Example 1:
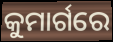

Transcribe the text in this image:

କୁମାର୍ଗରେ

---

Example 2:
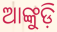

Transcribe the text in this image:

ଆଙ୍କୁଡ଼ି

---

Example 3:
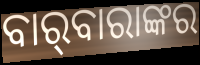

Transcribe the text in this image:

ବାର୍‌ବାରାଙ୍କର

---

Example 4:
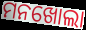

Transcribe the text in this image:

ମନଖୋଲା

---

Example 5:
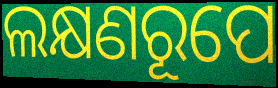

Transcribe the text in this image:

ଲକ୍ଷଣରୂପେ